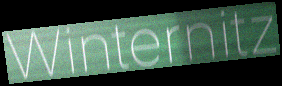
Winternitz